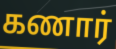
கணார்